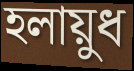
হলায়ুধ